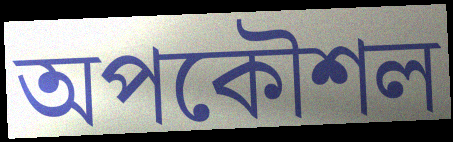
অপকৌশল